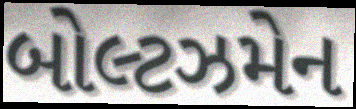
બોલ્ટઝમેન